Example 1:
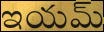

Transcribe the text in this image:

ఇయమ్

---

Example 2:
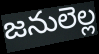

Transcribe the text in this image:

జనులెల్ల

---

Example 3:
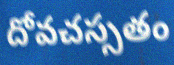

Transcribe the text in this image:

దోవచస్సతం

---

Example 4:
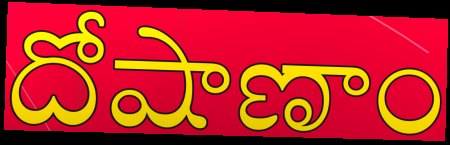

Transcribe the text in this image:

దోషాణాం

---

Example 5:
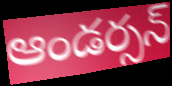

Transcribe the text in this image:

ఆండర్సన్